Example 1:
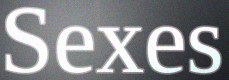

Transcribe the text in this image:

Sexes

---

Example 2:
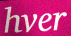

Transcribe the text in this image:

hver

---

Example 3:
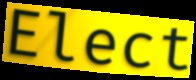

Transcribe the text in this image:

Elect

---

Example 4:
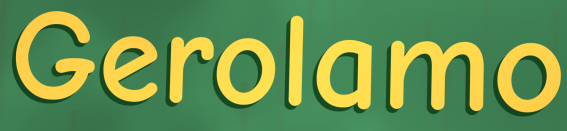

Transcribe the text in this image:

Gerolamo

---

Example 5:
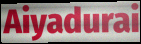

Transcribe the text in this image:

Aiyadurai